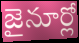
జైనూర్లో